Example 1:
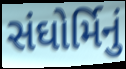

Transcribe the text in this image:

સંઘોર્મિનું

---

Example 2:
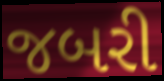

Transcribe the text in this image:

જબરી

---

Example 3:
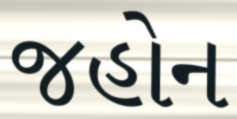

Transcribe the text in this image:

જહોન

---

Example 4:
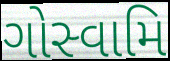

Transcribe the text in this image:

ગોસ્વામિ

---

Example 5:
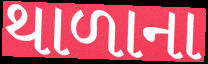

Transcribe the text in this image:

થાળાના